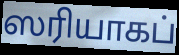
ஸரியாகப்